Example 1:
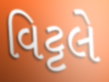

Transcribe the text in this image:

વિટ્ટલે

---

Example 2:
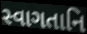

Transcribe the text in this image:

સ્વાગતાનિ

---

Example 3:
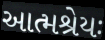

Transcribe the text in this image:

આત્મશ્રેયઃ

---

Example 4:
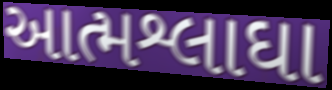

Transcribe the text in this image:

આત્મશ્લાઘા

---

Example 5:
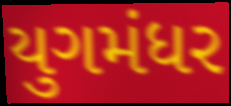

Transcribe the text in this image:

યુગમંધર